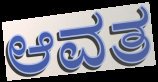
ಆವತ